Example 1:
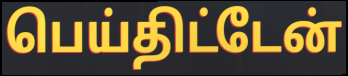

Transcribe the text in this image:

பெய்திட்டேன்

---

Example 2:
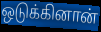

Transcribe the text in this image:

ஒடுக்கினான்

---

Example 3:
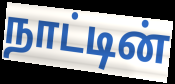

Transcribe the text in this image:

நாட்டின்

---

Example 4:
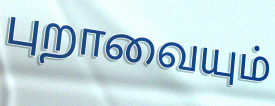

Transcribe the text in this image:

புறாவையும்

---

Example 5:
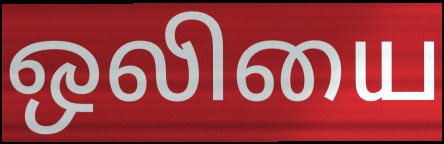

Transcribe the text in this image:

ஒலியை